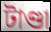
টাণ্ডা